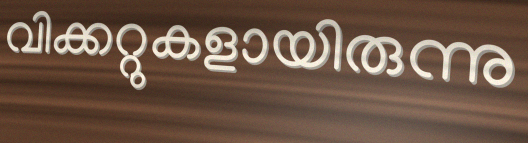
വിക്കറ്റുകളായിരുന്നു